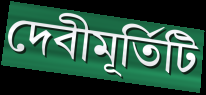
দেবীমূর্তিটি